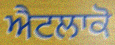
ਐਟਲਾਕੋ